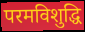
परमविशुद्धि